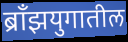
ब्राँझयुगातील